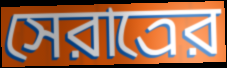
সেরাত্রের